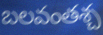
బలవంతశ్చ